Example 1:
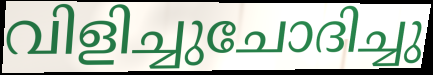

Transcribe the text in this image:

വിളിച്ചുചോദിച്ചു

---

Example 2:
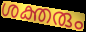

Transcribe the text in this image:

ശക്തരും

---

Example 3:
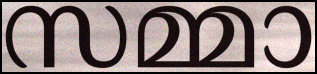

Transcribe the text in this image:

സമ്മാ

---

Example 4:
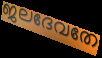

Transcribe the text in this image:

ജലദേവതേ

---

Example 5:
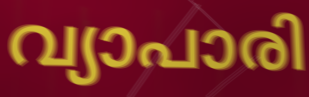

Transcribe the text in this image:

വ്യാപാരി